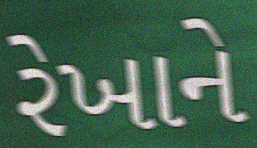
રેખાને